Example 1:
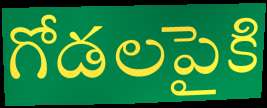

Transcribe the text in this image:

గోడలపైకి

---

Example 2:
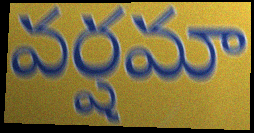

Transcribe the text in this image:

వర్షమా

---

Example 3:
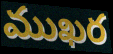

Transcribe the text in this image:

ముఖర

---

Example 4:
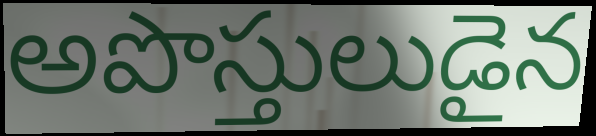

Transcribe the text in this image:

అపొస్తులుడైన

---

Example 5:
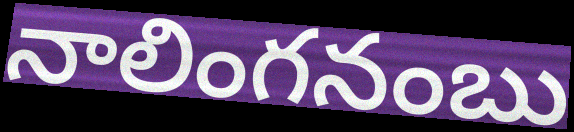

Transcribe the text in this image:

నాలింగనంబు